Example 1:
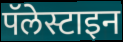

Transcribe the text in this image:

पॅलेस्टाइन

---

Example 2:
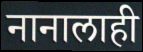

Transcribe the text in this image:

नानालाही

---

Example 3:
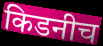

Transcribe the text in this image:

किडनीच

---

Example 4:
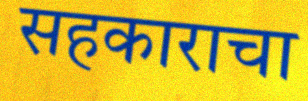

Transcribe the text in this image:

सहकाराचा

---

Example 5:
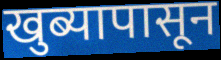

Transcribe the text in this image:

खुब्यापासून